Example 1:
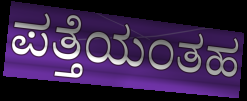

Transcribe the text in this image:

ಪತ್ತೆಯಂತಹ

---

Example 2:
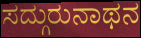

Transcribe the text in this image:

ಸದ್ಗುರುನಾಥನ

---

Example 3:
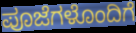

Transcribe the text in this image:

ಪೂಜೆಗಳೊಂದಿಗೆ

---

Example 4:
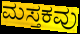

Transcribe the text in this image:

ಮಸ್ತಕವು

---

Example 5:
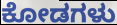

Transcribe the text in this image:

ಕೋಡಗಳು